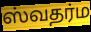
ஸ்வதர்ம